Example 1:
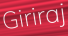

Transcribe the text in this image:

Giriraj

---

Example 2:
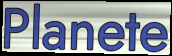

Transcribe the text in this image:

Planete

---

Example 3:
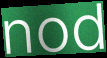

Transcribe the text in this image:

nod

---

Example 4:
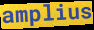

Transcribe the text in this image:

amplius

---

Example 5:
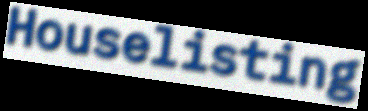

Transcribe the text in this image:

Houselisting